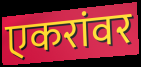
एकरांवर